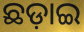
ଛଡ଼ାଇ